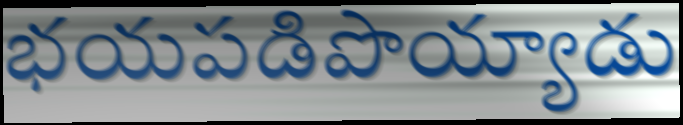
భయపడిపొయ్యాడు